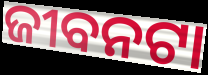
ଜୀବନଟା